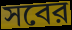
সবের